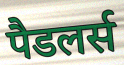
पैडलर्स